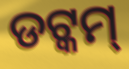
ଡଟ୍କମ୍